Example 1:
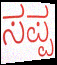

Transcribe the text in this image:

ಸಪ್ಪ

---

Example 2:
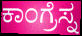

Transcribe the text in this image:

ಕಾಂಗ್ರೆಸ್ನ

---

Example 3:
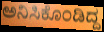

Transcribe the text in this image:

ಅನಿಸಿಕೊಂಡಿದ್ದ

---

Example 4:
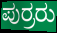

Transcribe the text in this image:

ಪುರ್ರರು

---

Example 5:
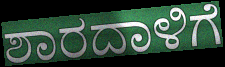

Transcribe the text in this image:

ಶಾರದಾಳಿಗೆ